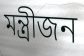
মন্ত্ৰীজন